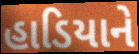
હાડિયાને